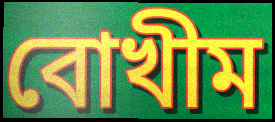
বোখীম